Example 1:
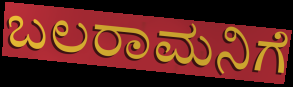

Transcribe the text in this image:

ಬಲರಾಮನಿಗೆ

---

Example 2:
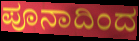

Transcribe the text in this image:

ಪೂನಾದಿಂದ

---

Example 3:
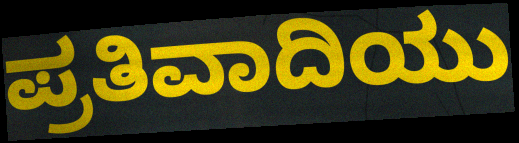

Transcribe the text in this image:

ಪ್ರತಿವಾದಿಯು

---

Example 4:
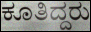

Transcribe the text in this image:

ಕೂತಿದ್ದರು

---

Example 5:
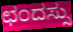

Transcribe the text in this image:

ಛಂದಸ್ಸು